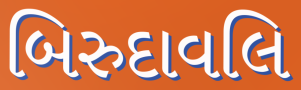
બિરુદાવલિ